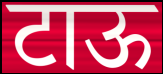
टाऊ